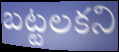
బట్టలకని